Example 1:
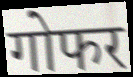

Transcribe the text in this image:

गोफर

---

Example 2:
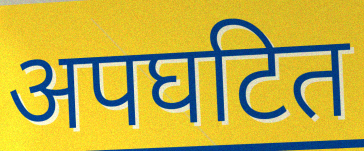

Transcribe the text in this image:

अपघटित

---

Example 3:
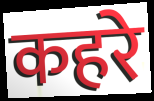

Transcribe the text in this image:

कहरे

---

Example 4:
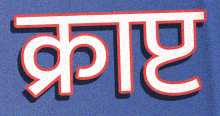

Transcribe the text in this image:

क्राप्ट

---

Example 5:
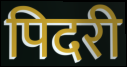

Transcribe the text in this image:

पिदरी